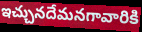
ఇచ్చునదేమనగావారికి